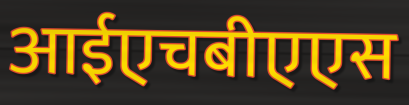
आईएचबीएएस